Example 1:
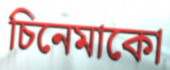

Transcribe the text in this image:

চিনেমাকো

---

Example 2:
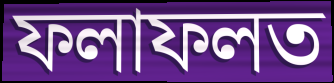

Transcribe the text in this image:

ফলাফলত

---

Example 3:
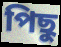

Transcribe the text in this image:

পিছু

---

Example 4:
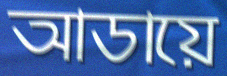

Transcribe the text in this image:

আডায়ে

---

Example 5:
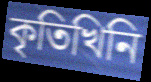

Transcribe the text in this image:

কৃতিখিনি